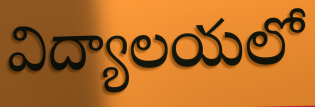
విద్యాలయలో